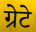
ग्रेटे